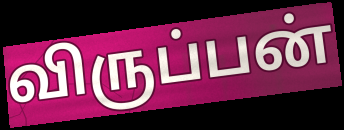
விருப்பன்